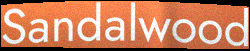
Sandalwood